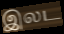
இலட